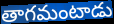
తాగమంటాడు